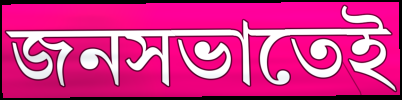
জনসভাতেই